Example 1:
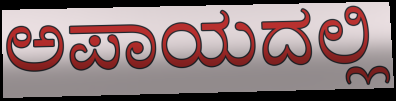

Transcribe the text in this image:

ಅಪಾಯದಲ್ಲಿ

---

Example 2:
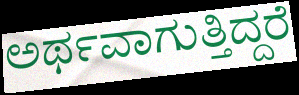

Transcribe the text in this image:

ಅರ್ಥವಾಗುತ್ತಿದ್ದರೆ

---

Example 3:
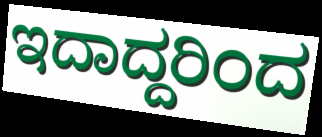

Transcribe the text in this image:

ಇದಾದ್ದರಿಂದ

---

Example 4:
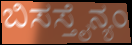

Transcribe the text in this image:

ಬಿಸಸ್ತೈನ್ಯಂ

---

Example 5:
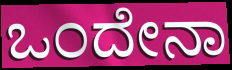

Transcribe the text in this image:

ಒಂದೇನಾ